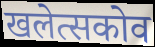
खलेत्सकोव